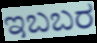
ಇಬಬರ